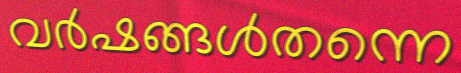
വർഷങ്ങൾതന്നെ